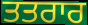
ਤਤਰਾਰ